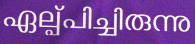
ഏല്പ്പിച്ചിരുന്നു